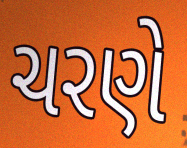
ચરણે